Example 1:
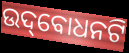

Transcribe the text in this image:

ଉଦ୍‌ବୋଧନଟି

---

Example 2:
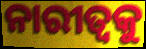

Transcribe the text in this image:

ନାରୀତ୍ୱକୁ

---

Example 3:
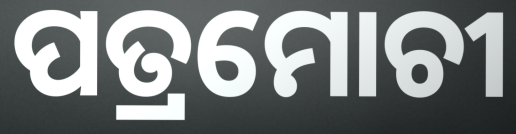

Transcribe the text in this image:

ପତ୍ରମୋଚୀ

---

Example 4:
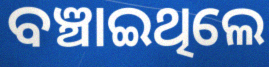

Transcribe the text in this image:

ବଞ୍ଚାଇଥିଲେ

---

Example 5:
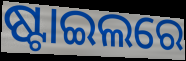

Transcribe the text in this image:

ଷ୍ଟାଇଲରେ